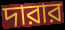
দারার